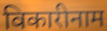
विकारीनाम